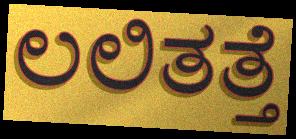
ಲಲಿತತ್ತೆ